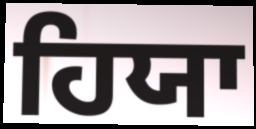
ਹਿਯਾ